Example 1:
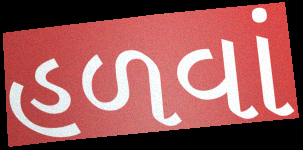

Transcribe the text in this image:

હળવાં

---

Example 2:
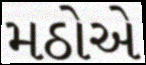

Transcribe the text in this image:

મઠોએ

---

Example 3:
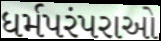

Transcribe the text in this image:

ધર્મપરંપરાઓ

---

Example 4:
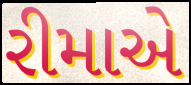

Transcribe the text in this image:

રીમાએ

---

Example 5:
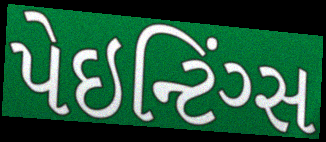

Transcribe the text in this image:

પેઇન્ટિંગ્સ